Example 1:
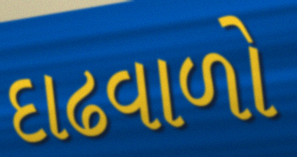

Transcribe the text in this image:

દાઢવાળો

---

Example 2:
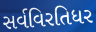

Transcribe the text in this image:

સર્વવિરતિધર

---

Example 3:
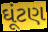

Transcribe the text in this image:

ઘૂંટણ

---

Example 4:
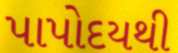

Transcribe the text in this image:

પાપોદયથી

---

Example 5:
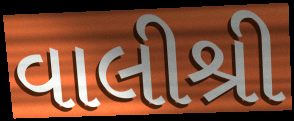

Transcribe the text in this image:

વાલીશ્રી